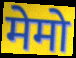
मेमो